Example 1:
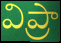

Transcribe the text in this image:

విప్రా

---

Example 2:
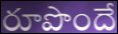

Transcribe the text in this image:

రూపొందే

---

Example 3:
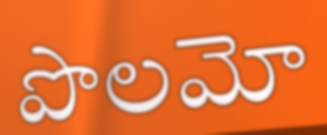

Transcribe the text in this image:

పొలమో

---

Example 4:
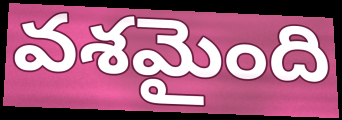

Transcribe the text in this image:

వశమైంది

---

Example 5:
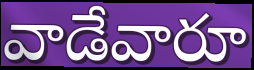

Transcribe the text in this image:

వాడేవారూ